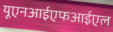
यूएनआईएफआईएल